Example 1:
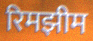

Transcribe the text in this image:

रिमझीम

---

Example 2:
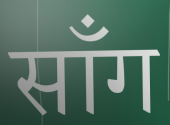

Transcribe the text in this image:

साँग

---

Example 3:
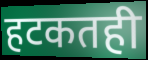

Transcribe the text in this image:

हटकतही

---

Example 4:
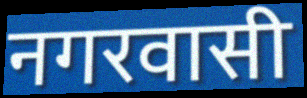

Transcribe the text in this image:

नगरवासी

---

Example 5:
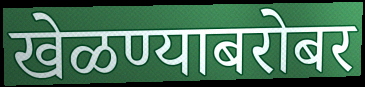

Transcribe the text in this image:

खेळण्याबरोबर